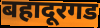
बहादूरगड